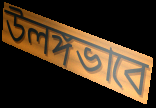
উলঙ্গভাবে